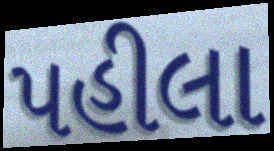
પહીલા